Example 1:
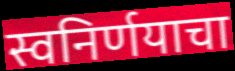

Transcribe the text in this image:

स्वनिर्णयाचा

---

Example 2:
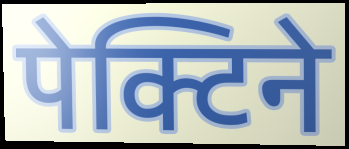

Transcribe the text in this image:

पेक्टिने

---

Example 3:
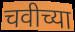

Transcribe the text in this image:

चवीच्या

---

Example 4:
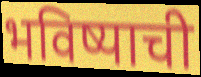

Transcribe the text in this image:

भविष्याची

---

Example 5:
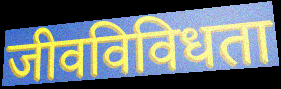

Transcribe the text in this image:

जीवविविधता